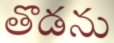
తొడను